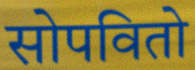
सोपवितो